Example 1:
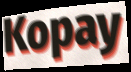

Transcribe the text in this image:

Kopay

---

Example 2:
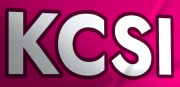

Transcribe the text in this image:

KCSI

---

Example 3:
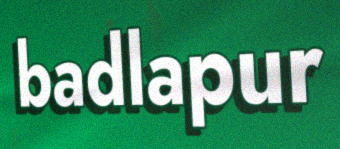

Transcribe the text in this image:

badlapur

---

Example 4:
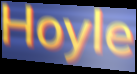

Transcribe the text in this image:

Hoyle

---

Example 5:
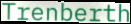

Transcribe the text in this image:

Trenberth